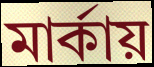
মার্কায়